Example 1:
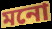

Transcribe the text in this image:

মনো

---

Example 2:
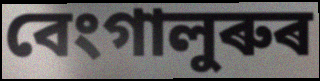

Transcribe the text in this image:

বেংগালুৰুৰ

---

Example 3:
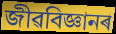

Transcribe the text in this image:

জীৱবিজ্ঞানৰ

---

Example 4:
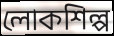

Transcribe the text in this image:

লোকশিল্প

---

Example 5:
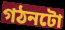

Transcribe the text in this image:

গঠনটো